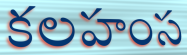
కలహంస